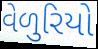
વેળુરિયો